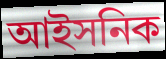
আইসনিক